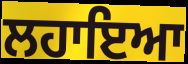
ਲਹਾਇਆ